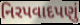
નિરપવાદપણું